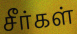
சீர்கள்